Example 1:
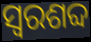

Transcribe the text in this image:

ସ୍ୱରଶବ୍ଦ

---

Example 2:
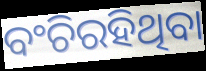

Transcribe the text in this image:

ବଂଚିରହିଥିବା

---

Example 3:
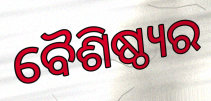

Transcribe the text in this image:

ବୈଶିଷ୍ଠ୍ୟର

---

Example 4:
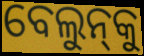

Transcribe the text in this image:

ବେଲୁନ୍‌କୁ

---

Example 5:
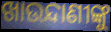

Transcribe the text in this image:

ଖାଉନ୍ଦାଣୀଙ୍କୁ